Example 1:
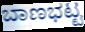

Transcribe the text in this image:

ಬಾಣಭಟ್ಟ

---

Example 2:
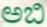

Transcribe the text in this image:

ಅಬಿ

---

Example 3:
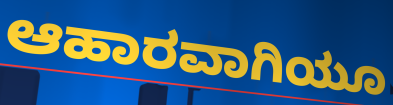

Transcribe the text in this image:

ಆಹಾರವಾಗಿಯೂ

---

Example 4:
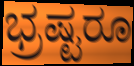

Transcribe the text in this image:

ಭ್ರಷ್ಟರೂ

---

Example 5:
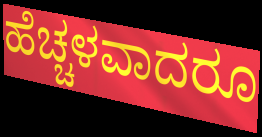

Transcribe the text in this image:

ಹೆಚ್ಚಳವಾದರೂ